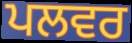
ਪਲਵਰ